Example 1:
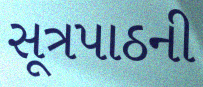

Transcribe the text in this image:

સૂત્રપાઠની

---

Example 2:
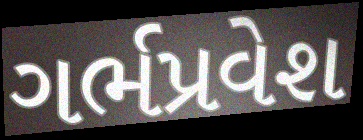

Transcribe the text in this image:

ગર્ભપ્રવેશ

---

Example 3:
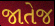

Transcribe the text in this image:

જાતેજ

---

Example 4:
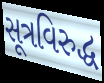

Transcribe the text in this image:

સૂત્રવિરુદ્ધ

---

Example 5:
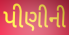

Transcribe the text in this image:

પીણીની